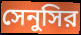
সেনুসির